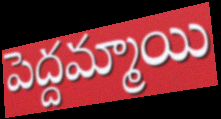
పెద్దమ్మాయి